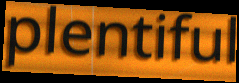
plentiful